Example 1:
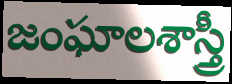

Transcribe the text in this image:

జంఘాలశాస్త్రీ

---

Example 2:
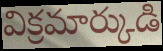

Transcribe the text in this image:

విక్రమార్కుడి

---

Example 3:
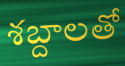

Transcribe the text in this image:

శబ్దాలతో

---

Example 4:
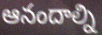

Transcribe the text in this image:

ఆనందాల్ని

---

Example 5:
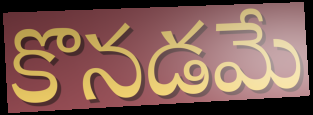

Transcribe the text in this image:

కొనడమే